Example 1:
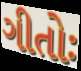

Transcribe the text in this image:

ગીતોઃ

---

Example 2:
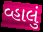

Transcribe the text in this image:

વ્હાલું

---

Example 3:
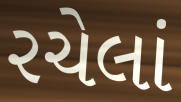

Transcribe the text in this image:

રચેલાં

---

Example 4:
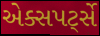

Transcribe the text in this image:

એક્સપર્ટ્સે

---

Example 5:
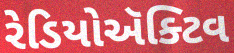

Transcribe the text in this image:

રેડિયોઍક્ટિવ